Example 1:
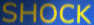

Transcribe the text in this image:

SHOCK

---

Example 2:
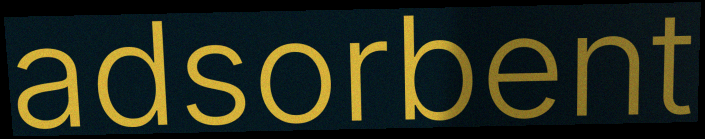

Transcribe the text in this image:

adsorbent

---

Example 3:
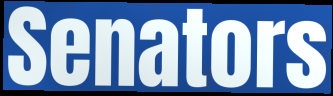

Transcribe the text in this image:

Senators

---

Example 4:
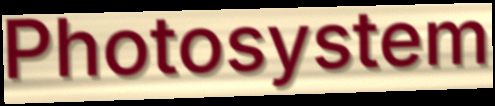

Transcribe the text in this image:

Photosystem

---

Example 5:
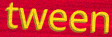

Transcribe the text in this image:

tween